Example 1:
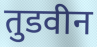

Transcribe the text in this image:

तुडवीन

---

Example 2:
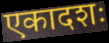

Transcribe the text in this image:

एकादशः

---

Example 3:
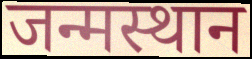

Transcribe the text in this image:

जन्मस्थान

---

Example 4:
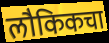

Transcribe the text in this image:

लौकिकचा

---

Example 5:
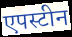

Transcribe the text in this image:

एपस्टीन